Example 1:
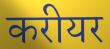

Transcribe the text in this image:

करीयर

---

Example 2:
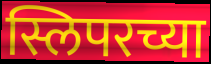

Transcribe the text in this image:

स्लिपरच्या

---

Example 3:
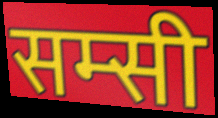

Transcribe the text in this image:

सम्सी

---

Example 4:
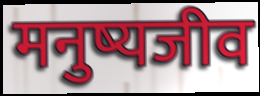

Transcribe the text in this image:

मनुष्यजीव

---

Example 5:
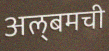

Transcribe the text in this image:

अल्बमची